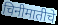
चिनीमातीचे